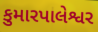
કુમારપાલેશ્વર